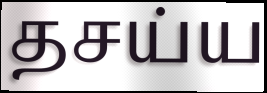
தசய்ய